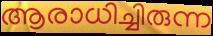
ആരാധിച്ചിരുന്ന